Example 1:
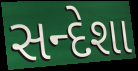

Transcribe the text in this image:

સન્દેશા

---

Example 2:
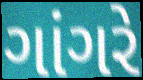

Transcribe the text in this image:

ગાંગરે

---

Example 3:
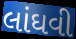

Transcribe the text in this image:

લાંઘવી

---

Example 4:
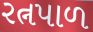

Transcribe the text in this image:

રત્નપાળ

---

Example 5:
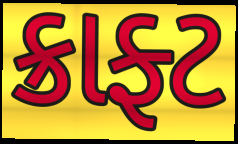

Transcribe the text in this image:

ક્રાફ્ટ